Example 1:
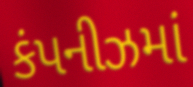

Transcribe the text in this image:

કંપનીઝમાં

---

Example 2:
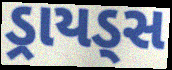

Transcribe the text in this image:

ડ્રાયડ્સ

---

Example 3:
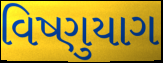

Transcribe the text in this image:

વિષ્ણુયાગ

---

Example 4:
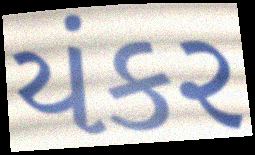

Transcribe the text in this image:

યંકર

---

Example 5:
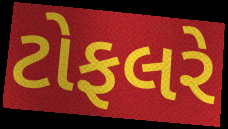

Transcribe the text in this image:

ટોફલરે